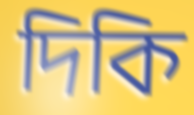
দিকি